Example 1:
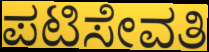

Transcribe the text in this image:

ಪಟಿಸೇವತಿ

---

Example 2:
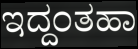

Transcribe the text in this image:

ಇದ್ದಂತಹಾ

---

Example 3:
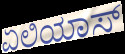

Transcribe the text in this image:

ಏಲಿಯಾಸ್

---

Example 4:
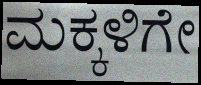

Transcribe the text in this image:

ಮಕ್ಕಳಿಗೇ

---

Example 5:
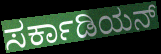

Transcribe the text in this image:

ಸರ್ಕಾಡಿಯನ್